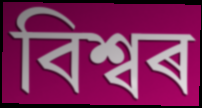
বিশ্বৰ